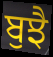
ਬੁਝੈ